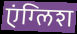
एंग्लिश